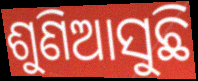
ଶୁଣିଆସୁଛି